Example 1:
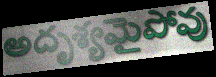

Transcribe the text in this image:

అదృశ్యమైపోవు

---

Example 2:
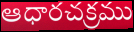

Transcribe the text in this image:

ఆధారచక్రము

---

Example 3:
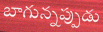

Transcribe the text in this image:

బాగున్నప్పుడు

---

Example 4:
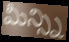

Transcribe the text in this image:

మీన్స్ని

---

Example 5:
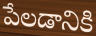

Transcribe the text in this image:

పేలడానికి